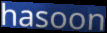
hasoon